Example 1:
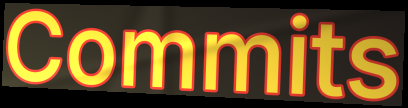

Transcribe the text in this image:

Commits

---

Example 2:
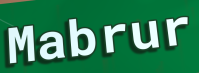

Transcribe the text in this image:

Mabrur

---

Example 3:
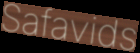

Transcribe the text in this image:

Safavids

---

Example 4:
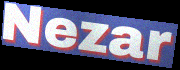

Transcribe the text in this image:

Nezar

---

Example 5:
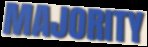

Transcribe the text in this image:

MAJORITY